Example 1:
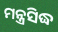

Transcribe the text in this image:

ମନ୍ତ୍ରସିଦ୍ଧ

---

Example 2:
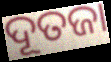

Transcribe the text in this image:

ଦୂତଜା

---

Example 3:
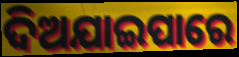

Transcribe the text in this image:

ଦିଅଯାଇପାରେ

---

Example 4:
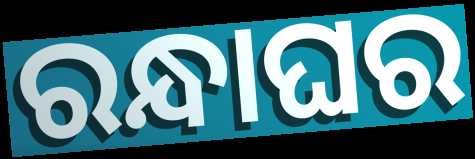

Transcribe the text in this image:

ରନ୍ଧାଘର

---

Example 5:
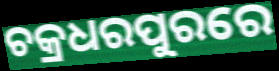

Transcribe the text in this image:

ଚକ୍ରଧରପୁରରେ